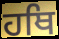
ਹਥਿ